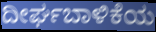
ದೀರ್ಘಬಾಳಿಕೆಯ